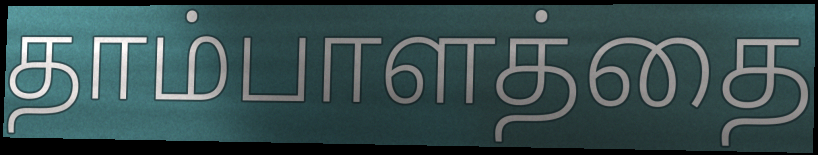
தாம்பாளத்தை